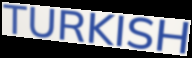
TURKISH